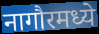
नागौरमध्ये